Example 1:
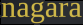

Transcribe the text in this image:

nagara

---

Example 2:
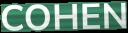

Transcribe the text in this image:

COHEN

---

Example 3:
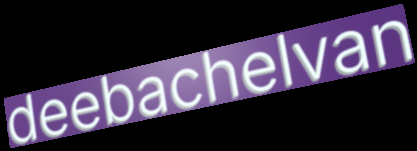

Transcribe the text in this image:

deebachelvan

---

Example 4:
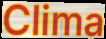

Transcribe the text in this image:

Clima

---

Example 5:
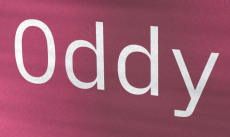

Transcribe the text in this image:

Oddy